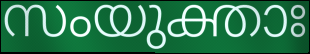
സംയുക്താഃ